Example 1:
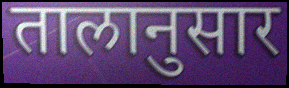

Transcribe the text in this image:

तालानुसार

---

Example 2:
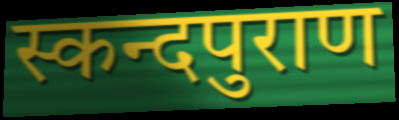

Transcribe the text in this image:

स्कन्दपुराण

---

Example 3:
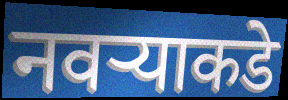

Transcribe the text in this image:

नवऱ्याकडे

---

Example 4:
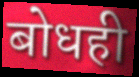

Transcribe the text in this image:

बोधही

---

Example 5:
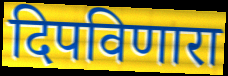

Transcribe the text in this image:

दिपविणारा